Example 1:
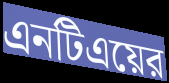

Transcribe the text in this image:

এনটিএয়ের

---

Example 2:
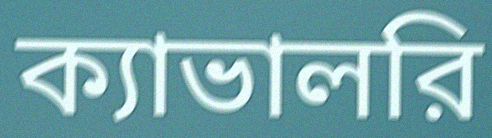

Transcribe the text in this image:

ক্যাভালরি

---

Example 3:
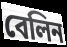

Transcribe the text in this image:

বেলিন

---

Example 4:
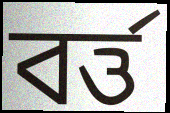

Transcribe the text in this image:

বর্ত্ত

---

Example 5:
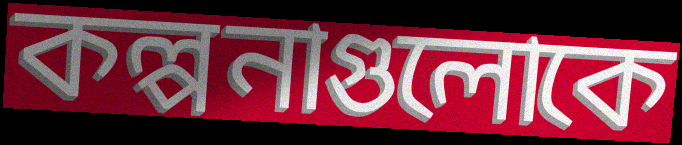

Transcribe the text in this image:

কল্পনাগুলোকে